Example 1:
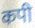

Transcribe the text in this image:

कपी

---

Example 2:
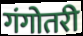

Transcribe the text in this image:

गंगोतरी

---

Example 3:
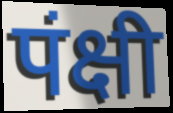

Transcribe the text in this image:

पंक्षी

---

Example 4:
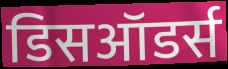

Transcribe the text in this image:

डिसऑडर्स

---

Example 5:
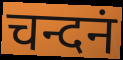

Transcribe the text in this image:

चन्दनं